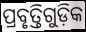
ପ୍ରବୃତ୍ତିଗୁଡ଼ିକ